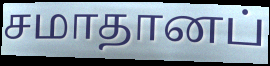
சமாதானப்